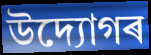
উদ্যোগৰ